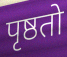
पृष्ठतो